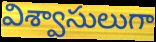
విశ్వాసులుగా